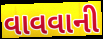
વાવવાની